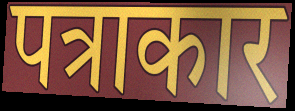
पत्राकार